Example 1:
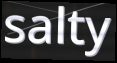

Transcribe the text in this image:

salty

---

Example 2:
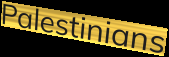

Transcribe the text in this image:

Palestinians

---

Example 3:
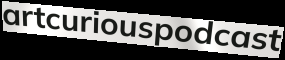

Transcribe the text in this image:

artcuriouspodcast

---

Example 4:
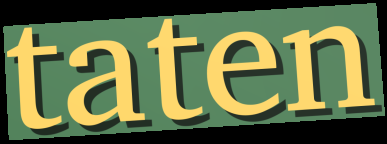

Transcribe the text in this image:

taten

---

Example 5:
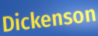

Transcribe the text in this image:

Dickenson